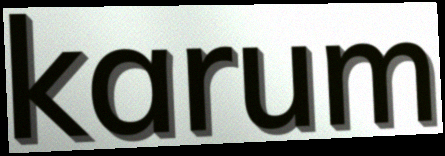
karum